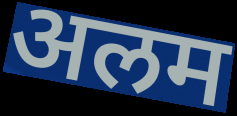
अलम